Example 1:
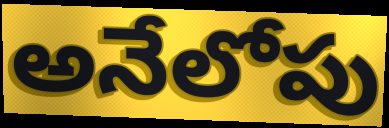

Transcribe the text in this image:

అనేలోపు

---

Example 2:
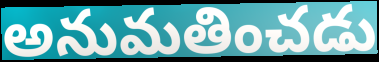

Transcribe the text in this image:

అనుమతించడు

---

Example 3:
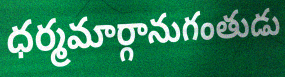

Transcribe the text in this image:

ధర్మమార్గానుగంతుడు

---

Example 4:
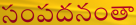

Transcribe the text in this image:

సంపదనంతా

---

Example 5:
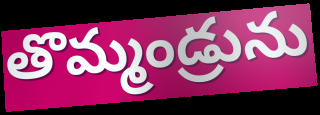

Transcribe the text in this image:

తొమ్మండ్రును